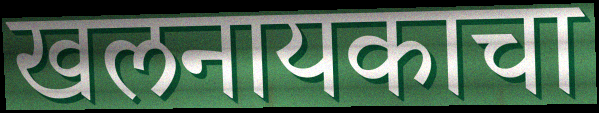
खलनायकाचा